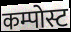
कम्पोस्ट